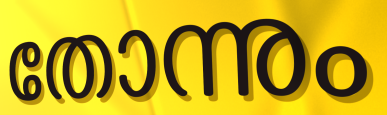
തോന്നും